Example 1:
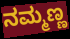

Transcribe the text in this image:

ನಮ್ಮಣ್ಣ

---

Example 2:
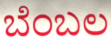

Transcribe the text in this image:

ಬೆಂಬಲ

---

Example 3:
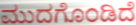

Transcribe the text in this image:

ಮುದಗೊಂಡಿದೆ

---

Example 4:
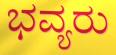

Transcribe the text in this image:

ಭವ್ಯರು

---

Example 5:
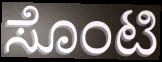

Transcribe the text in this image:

ಸೊಂಟಿ